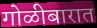
गोळीबारात